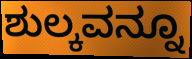
ಶುಲ್ಕವನ್ನೂ